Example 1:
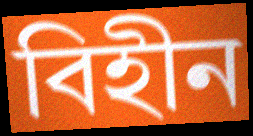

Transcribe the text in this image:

বিহীন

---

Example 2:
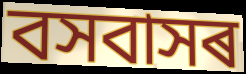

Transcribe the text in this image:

বসবাসৰ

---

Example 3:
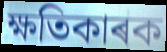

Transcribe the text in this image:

ক্ষতিকাৰক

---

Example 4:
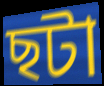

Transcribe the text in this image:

ছটা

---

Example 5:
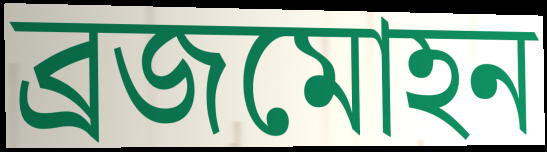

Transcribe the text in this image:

ব্ৰজমোহন